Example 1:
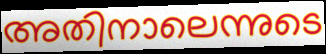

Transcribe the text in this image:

അതിനാലെന്നുടെ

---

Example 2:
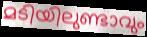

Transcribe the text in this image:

മടിയിലുണ്ടാവും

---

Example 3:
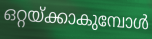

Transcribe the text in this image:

ഒറ്റയ്ക്കാകുമ്പോൾ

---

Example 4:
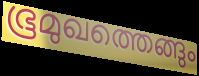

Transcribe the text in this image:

ഭൂമുഖത്തെങ്ങും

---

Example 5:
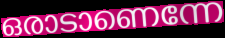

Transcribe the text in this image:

ഒരാടാണെന്നേ